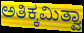
ಅತಿಕ್ಕಮಿತ್ವಾ